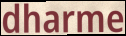
dharme